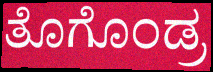
ತೊಗೊಂಡ್ರ